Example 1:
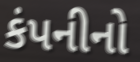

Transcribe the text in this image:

કંપનીનો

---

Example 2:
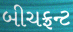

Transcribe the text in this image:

બીચફ્રન્ટ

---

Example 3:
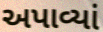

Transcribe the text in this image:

અપાવ્યાં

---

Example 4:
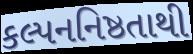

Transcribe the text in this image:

કલ્પનનિષ્ઠતાથી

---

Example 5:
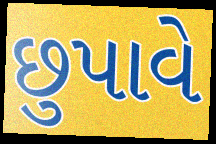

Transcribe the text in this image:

છુપાવે